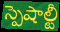
స్పెషాల్టీ